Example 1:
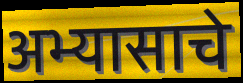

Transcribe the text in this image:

अभ्यासाचे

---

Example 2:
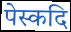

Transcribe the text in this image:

पेस्कदि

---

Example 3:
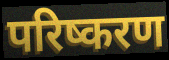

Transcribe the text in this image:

परिष्करण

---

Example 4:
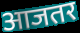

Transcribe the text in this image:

आजतर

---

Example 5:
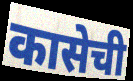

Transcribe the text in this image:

कासेची